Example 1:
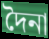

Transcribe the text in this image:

দৈনা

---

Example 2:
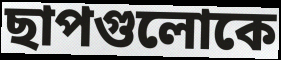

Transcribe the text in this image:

ছাপগুলোকে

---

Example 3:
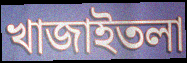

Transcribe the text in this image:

খাজাইতলা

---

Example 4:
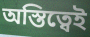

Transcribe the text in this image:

অস্তিত্বেই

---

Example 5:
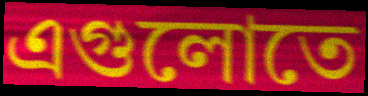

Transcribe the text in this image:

এগুলোতে